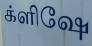
க்ளிஷே